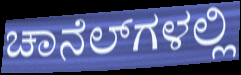
ಚಾನೆಲ್‍ಗಳಲ್ಲಿ